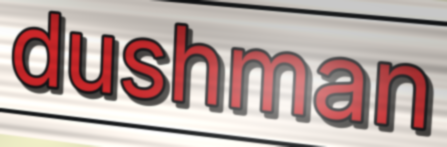
dushman